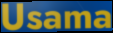
Usama